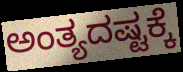
ಅಂತ್ಯದಷ್ಟಕ್ಕೆ